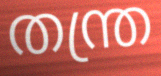
തന്ത്ര